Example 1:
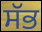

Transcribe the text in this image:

ਸੱਭ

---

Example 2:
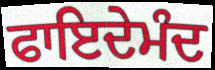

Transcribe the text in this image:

ਫਾਇਦੇਮੰਦ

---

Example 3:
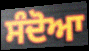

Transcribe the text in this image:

ਸੰਦੋਆ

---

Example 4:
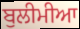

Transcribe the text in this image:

ਬੁਲੀਮੀਆ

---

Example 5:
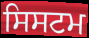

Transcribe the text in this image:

ਸਿਸਟਮ